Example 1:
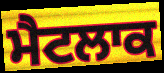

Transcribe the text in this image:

ਮੈਟਲਾਕ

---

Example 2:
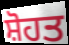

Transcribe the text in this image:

ਸ਼ੋਹਤ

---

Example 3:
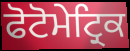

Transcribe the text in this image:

ਫੋਟੋਮੇਟ੍ਰਿਕ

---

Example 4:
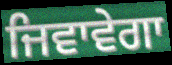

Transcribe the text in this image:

ਜਿਵਾਵੇਗਾ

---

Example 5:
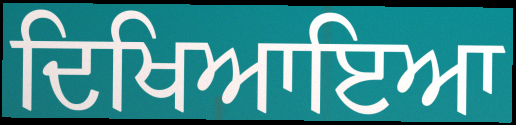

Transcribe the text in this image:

ਦਿਖਿਆਇਆ